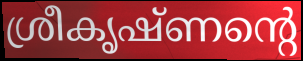
ശ്രീകൃഷ്ണന്റെ